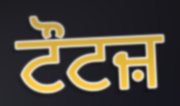
ਟੌਟਜ਼